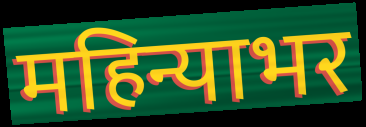
महिन्याभर